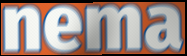
nema